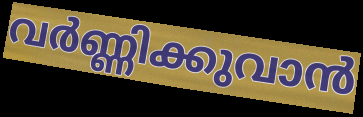
വർണ്ണിക്കുവാൻ